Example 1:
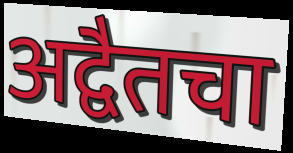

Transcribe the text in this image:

अद्वैतचा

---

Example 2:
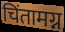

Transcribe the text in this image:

चिंतामग्न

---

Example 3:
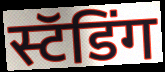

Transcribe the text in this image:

स्टॅडिंग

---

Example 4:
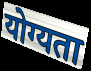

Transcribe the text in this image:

योग्यता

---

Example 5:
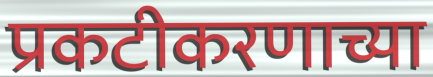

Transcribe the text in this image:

प्रकटीकरणाच्या